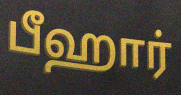
பீஹார்